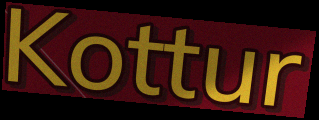
Kottur